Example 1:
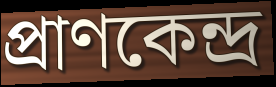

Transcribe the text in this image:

প্ৰাণকেন্দ্ৰ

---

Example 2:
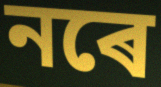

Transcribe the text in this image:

নৰে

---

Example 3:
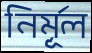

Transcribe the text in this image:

নিৰ্মূল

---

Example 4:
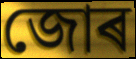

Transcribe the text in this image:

জোৰ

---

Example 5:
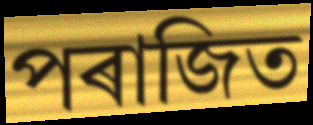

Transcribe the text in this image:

পৰাজিত